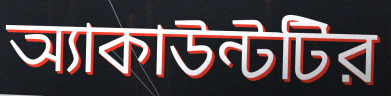
অ্যাকাউন্টটির